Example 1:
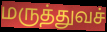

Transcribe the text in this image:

மருத்துவச்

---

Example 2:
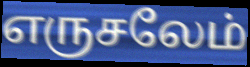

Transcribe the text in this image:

எருசலேம்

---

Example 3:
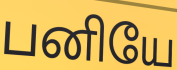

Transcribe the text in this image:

பனியே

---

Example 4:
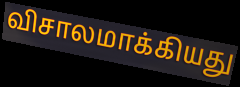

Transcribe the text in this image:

விசாலமாக்கியது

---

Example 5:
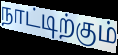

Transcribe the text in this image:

நாட்டிற்கும்